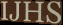
IJHS